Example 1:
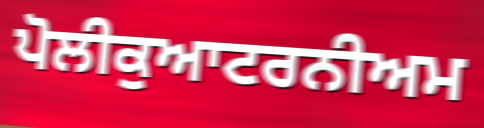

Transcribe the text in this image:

ਪੋਲੀਕੁਆਟਰਨੀਅਮ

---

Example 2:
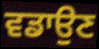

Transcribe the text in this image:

ਵਡਾਉਣ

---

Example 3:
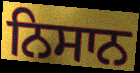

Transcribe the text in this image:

ਨਿਸਾਨ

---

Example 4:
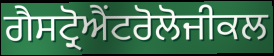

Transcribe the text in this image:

ਗੈਸਟ੍ਰੋਐਂਟਰੋਲੋਜੀਕਲ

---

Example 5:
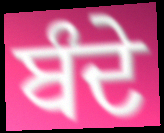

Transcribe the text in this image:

ਬੰਦੇ